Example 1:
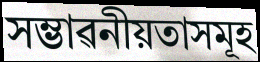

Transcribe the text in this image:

সম্ভাৱনীয়তাসমূহ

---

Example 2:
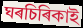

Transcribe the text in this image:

ঘৰচিৰিকাই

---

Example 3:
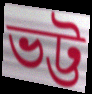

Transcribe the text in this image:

ভট্ট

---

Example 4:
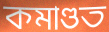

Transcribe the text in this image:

কমাণ্ডত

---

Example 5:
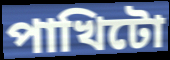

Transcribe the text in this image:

পাখিটো